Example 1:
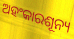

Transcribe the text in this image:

ଅହଂକାରଶୂନ୍ୟ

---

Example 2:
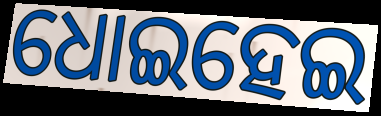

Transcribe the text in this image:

ଧୋଇହେଇ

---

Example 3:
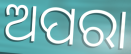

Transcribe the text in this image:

ଅପରା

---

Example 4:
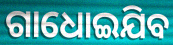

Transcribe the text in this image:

ଗାଧୋଇଯିବ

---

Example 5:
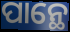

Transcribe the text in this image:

ପାନ୍ଥେ